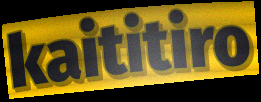
kaititiro